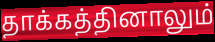
தாக்கத்தினாலும்